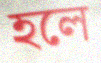
হলে